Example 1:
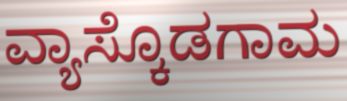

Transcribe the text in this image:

ವ್ಯಾಸ್ಕೊಡಗಾಮ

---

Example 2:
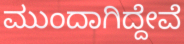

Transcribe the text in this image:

ಮುಂದಾಗಿದ್ದೇವೆ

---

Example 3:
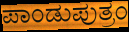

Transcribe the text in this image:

ಪಾಂಡುಪುತ್ರಂ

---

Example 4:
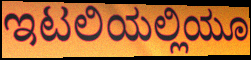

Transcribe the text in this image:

ಇಟಲಿಯಲ್ಲಿಯೂ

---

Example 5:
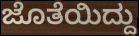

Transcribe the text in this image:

ಜೊತೆಯಿದ್ದು